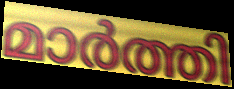
മാർത്തി